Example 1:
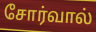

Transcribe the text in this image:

சோர்வால்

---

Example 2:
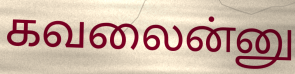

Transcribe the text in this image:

கவலைன்னு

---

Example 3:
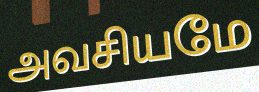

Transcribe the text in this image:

அவசியமே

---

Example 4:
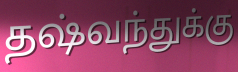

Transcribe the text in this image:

தஷ்வந்துக்கு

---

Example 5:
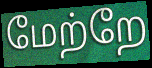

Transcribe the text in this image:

மேற்றே